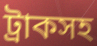
ট্রাকসহ